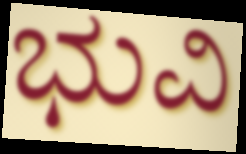
ಭುವಿ